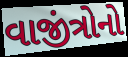
વાજીંત્રોનો